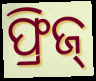
ଫ୍ରିଜ୍